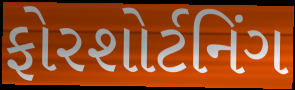
ફોરશોર્ટનિંગ